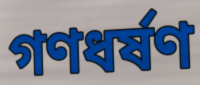
গণধর্ষণ